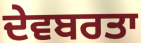
ਦੇਵਬਰਤਾ